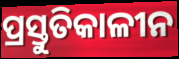
ପ୍ରସ୍ତୁତିକାଳୀନ